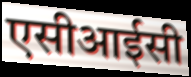
एसीआईसी